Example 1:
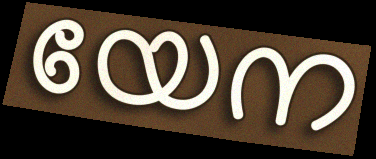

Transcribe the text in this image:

യേന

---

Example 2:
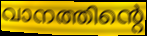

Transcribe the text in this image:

വാനത്തിന്റെ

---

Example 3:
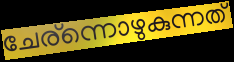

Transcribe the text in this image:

ചേര്ന്നൊഴുകുന്നത്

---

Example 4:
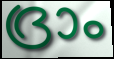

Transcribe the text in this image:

ദ്രാം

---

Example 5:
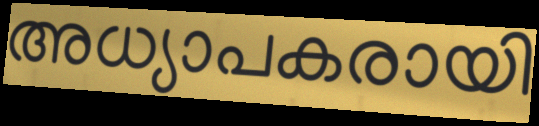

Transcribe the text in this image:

അധ്യാപകരായി